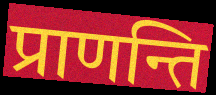
प्राणन्ति